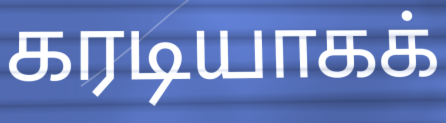
கரடியாகக்